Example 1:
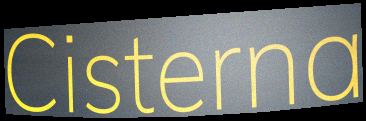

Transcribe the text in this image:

Cisterna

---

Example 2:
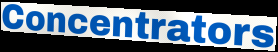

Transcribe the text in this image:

Concentrators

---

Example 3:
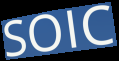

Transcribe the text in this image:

SOIC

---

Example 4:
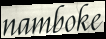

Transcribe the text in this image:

namboke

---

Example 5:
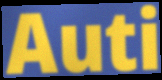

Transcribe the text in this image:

Auti